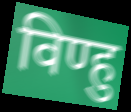
विण्हु